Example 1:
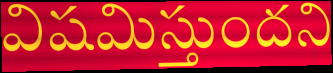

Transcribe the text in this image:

విషమిస్తుందని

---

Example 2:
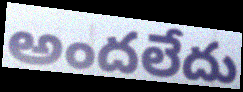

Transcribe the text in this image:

అందలేదు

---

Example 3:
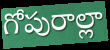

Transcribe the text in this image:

గోపురాల్లా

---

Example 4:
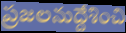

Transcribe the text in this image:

ప్రజలనుద్దేశించి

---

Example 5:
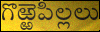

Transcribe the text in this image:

గొఱ్ఱెపిల్లలు